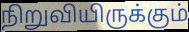
நிறுவியிருக்கும்